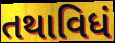
તથાવિધં